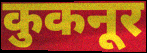
कुकनूर